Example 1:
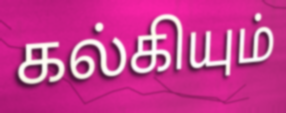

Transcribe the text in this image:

கல்கியும்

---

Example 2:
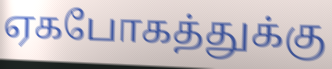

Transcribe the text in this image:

ஏகபோகத்துக்கு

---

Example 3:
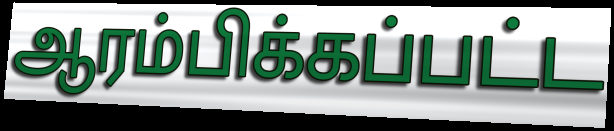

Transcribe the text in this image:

ஆரம்பிக்கப்பட்ட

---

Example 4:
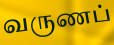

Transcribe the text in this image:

வருணப்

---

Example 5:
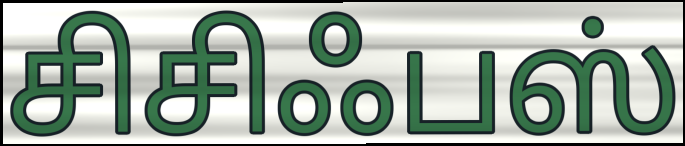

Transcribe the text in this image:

சிசிஃபஸ்